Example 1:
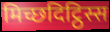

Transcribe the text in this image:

मिच्छदिट्ठिस्स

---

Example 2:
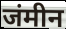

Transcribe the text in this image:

जंमीन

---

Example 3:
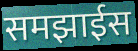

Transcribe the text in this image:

समझाईस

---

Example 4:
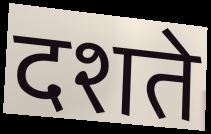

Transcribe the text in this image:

दशते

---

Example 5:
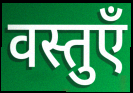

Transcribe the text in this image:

वस्तुएँ